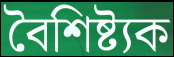
বৈশিষ্ট্যক